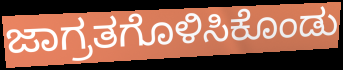
ಜಾಗ್ರತಗೊಳಿಸಿಕೊಂಡು